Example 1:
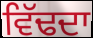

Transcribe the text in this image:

ਵਿੱਢਦਾ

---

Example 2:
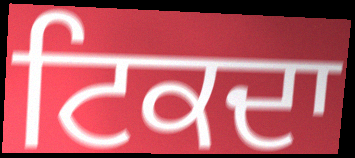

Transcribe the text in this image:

ਟਿਕਦਾ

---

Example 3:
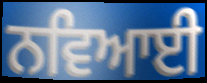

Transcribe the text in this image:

ਨਵਿਆਈ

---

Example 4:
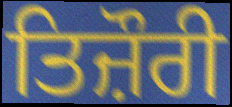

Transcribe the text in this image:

ਤਿਜ਼ੌਰੀ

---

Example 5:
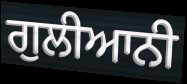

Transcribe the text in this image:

ਗੁਲੀਆਨੀ